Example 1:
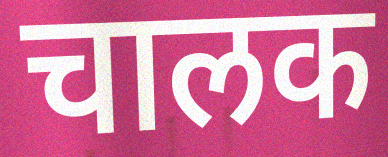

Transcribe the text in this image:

चालक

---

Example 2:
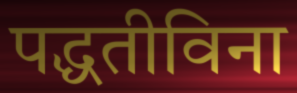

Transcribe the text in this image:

पद्धतीविना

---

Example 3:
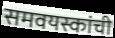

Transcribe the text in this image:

समवयस्कांची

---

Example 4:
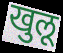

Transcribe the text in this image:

खुलू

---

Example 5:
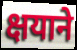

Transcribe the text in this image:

क्षयाने